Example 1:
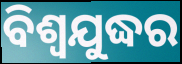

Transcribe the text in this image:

ବିଶ୍ୱଯୁଦ୍ଧର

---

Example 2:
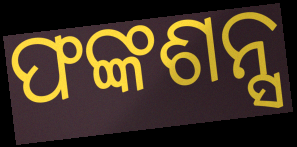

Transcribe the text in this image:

ଫଙ୍କଶନ୍ସ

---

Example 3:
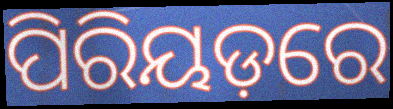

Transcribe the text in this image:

ପିରିୟଡ଼ରେ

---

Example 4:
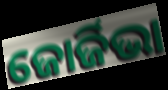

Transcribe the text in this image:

ଜୋର୍ଜିଭା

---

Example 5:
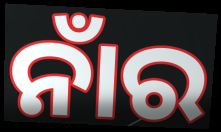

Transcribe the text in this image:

ନାଁର